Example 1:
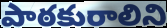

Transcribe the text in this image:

పాఠకురాలిని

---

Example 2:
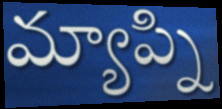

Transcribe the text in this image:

మ్యాప్ని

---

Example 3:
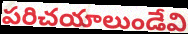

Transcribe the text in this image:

పరిచయాలుండేవి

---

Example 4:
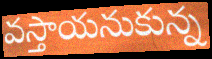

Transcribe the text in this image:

వస్తాయనుకున్న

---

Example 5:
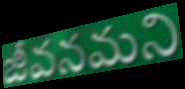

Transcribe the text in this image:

జీవనమని